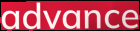
advance